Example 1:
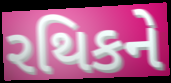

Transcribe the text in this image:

રથિકને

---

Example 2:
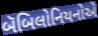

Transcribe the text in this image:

બૅબિલોનિયનોએ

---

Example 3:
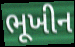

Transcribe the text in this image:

ભૂખીન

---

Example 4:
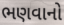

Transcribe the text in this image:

ભણવાનો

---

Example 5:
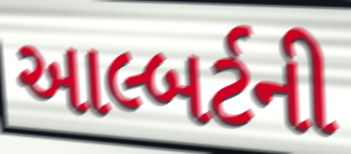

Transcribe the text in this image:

આલ્બર્ટની